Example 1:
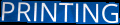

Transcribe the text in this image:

PRINTING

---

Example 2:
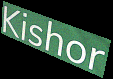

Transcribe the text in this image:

Kishor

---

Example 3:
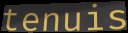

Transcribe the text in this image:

tenuis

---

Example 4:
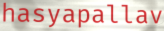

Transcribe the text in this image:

hasyapallav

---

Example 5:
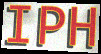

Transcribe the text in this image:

IPH